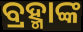
ବ୍ରହ୍ମାଙ୍କ